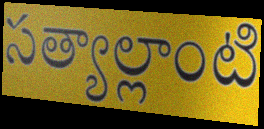
సత్యాల్లాంటి